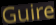
Guire